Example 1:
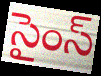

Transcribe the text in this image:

సైంస్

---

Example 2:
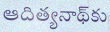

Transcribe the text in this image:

ఆదిత్యనాథ్‌కు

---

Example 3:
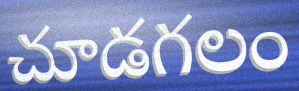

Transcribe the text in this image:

చూడగలం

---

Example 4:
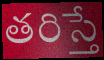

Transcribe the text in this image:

తరిస్తే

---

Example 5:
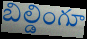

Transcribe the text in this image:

బిల్డింగూ